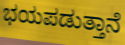
ಭಯಪಡುತ್ತಾನೆ